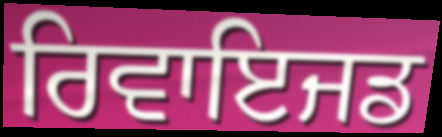
ਰਿਵਾਇਜਡ